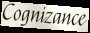
Cognizance